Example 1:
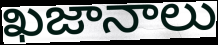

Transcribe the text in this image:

ఖజానాలు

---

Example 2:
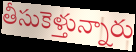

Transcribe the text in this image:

తీసుకెళ్తున్నారు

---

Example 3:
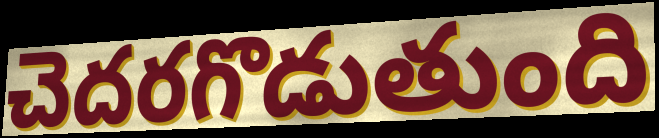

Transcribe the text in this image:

చెదరగొడుతుంది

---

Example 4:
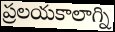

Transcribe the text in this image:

ప్రలయకాలాగ్ని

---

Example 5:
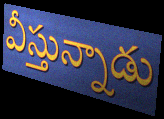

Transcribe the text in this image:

వీస్తున్నాడు